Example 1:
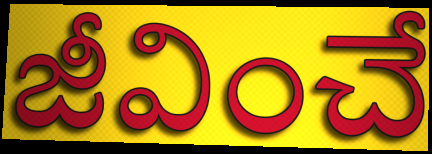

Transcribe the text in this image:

జీవించే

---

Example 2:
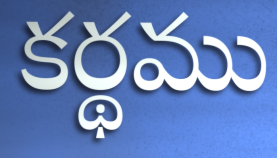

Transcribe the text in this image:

కర్థము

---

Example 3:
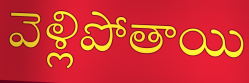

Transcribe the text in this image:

వెళ్లిపోతాయి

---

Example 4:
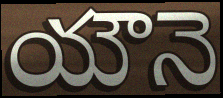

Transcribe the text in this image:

యౌనె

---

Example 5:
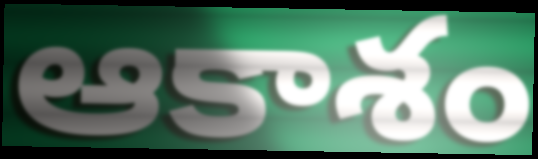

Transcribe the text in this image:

ఆకాశం